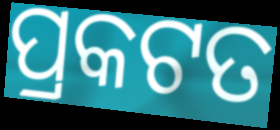
ପ୍ରକଟତ